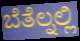
ಬೆತೆಲ್ನಲ್ಲಿ